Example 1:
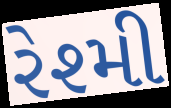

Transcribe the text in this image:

રેશ્મી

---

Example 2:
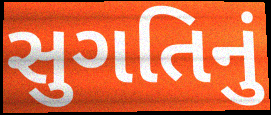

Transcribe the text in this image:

સુગતિનું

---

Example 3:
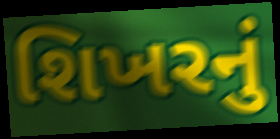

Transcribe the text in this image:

શિખરનું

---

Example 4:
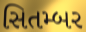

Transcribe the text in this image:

સિતમ્બર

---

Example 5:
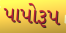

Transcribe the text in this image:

પાપોરૂપ